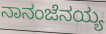
ನಾನಂಜೆನಯ್ಯ